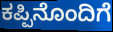
ಕಪ್ಪಿನೊಂದಿಗೆ